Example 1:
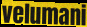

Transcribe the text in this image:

velumani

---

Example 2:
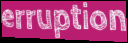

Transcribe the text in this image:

erruption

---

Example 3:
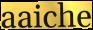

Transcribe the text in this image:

aaiche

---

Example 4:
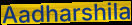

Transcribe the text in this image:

Aadharshila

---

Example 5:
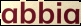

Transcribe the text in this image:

abbia